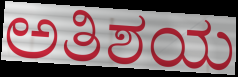
ಅತಿಶಯ